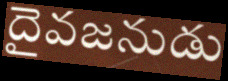
దైవజనుడు